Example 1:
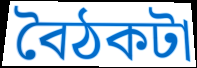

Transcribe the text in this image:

বৈঠকটা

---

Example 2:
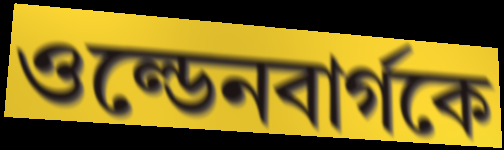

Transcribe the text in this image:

ওল্ডেনবার্গকে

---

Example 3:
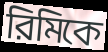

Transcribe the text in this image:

রিমিকে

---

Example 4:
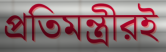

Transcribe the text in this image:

প্রতিমন্ত্রীরই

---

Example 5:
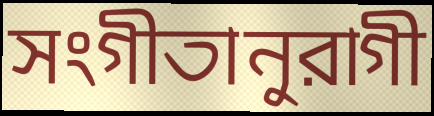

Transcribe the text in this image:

সংগীতানুরাগী